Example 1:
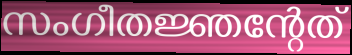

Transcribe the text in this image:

സംഗീതജ്ഞന്റേത്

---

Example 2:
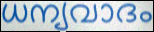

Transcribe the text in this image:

ധന്യവാദം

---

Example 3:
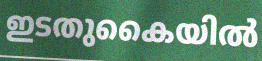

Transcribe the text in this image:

ഇടതുകൈയിൽ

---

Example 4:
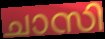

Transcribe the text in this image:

ചാസി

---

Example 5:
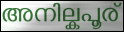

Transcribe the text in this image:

അനില്കപൂര്